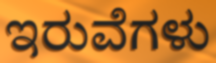
ಇರುವೆಗಳು